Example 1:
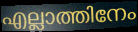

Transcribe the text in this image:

എല്ലാത്തിനേം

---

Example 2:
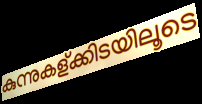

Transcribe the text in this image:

കുന്നുകള്ക്കിടയിലൂടെ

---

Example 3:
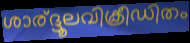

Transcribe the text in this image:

ശാര്ദ്ദൂലവിക്രീഡിതം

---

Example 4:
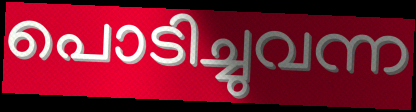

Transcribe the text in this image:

പൊടിച്ചുവന്ന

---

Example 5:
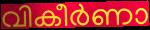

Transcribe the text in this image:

വികീർണാ